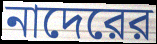
নাদেরের